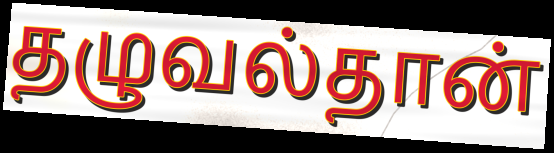
தழுவல்தான்